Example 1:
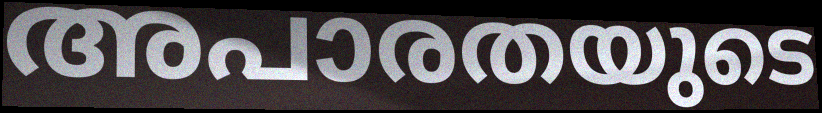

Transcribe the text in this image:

അപാരതയുടെ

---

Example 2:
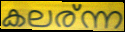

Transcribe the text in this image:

കലര്ന്ന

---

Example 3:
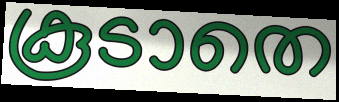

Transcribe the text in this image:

കൂടാതെ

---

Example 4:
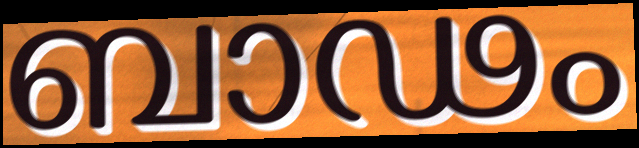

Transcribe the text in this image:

ബാഢം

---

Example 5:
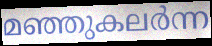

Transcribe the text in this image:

മഞ്ഞുകലർന്ന